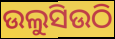
ଉଲୁସିଉଠି